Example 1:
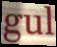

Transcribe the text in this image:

gul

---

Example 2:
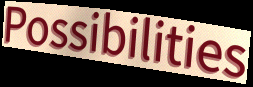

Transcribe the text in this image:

Possibilities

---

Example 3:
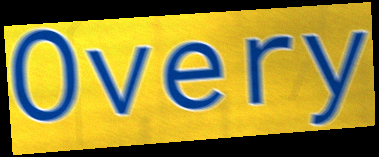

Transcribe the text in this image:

Overy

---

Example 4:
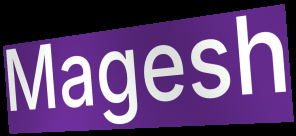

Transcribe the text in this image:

Magesh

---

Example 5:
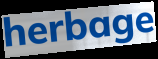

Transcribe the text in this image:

herbage